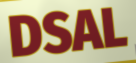
DSAL